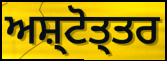
ਅਸ਼੍ਟੋਤ੍ਤਰ